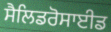
ਸੈਲਿਡਰੋਸਾਈਡ